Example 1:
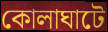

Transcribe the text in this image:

কোলাঘাটে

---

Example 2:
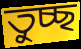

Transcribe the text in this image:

তুচ্ছ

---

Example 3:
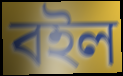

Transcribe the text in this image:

বইল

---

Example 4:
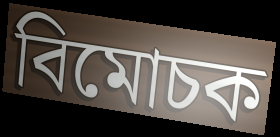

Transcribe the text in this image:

বিমোচক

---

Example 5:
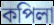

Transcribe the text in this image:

কপিলা